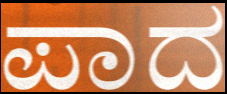
ಪಾದ